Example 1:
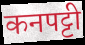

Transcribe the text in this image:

कनपट्टी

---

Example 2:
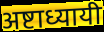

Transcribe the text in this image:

अष्टाध्यायी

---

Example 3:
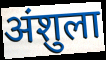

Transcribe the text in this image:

अंशुला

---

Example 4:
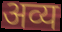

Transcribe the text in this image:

अव्य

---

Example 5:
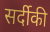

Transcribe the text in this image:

सर्दीकी